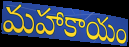
మహాకాయం